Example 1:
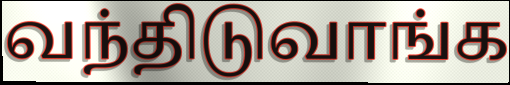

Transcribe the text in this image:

வந்திடுவாங்க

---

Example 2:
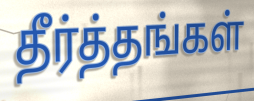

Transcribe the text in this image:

தீர்த்தங்கள்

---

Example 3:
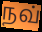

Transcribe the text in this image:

நவ்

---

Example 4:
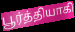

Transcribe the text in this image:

பூர்த்தியாகி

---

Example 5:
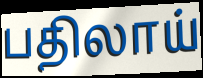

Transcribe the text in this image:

பதிலாய்